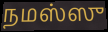
நமஸ்ஸு